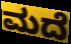
ಮದೆ